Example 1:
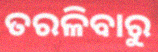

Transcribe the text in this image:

ତରଳିବାରୁ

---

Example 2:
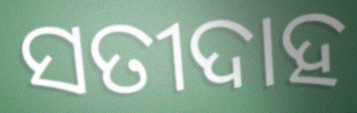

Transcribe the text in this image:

ସତୀଦାହ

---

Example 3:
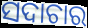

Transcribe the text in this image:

ସଦାଚାର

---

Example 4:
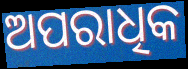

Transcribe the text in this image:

ଅପରାଧିକ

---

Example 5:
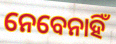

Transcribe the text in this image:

ନେବେନାହିଁ